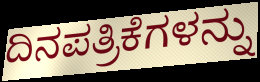
ದಿನಪತ್ರಿಕೆಗಳನ್ನು